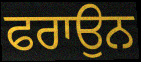
ਫਰਾਉਨ